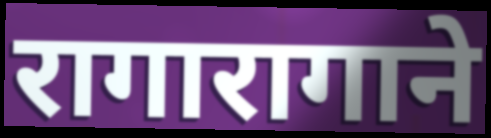
रागारागाने